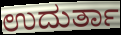
ಉದುರ್ತಾ